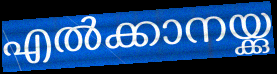
എൽക്കാനയ്ക്കു